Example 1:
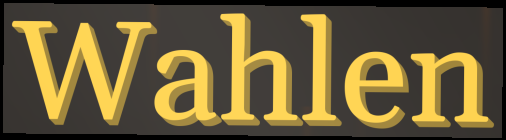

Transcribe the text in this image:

Wahlen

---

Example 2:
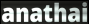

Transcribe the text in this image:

anathai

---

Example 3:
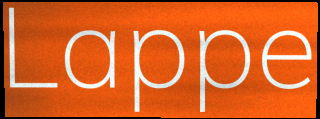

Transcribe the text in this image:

Lappe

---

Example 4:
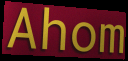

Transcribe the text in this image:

Ahom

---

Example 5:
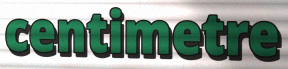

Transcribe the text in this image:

centimetre